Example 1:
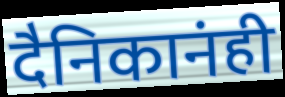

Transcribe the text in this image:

दैनिकानंही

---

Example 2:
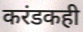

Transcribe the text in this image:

करंडकही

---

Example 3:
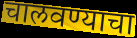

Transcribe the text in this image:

चालवण्याचा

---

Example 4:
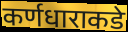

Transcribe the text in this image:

कर्णधाराकडे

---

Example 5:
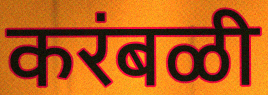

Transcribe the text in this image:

करंबळी